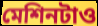
মেশিনটাও